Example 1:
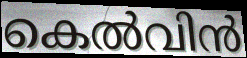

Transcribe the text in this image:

കെൽവിൻ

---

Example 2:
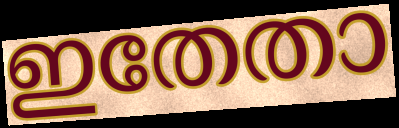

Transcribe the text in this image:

ഇതേതാ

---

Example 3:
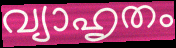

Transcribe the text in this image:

വ്യാഹൃതം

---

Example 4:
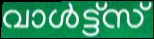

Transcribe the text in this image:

വാൾട്ട്സ്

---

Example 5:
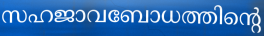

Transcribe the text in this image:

സഹജാവബോധത്തിന്റെ